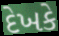
દેખકે